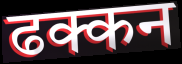
ढक्कन